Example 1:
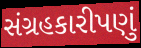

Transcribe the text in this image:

સંગ્રહકારીપણું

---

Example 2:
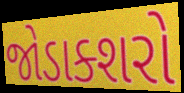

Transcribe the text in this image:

જોડાક્શરો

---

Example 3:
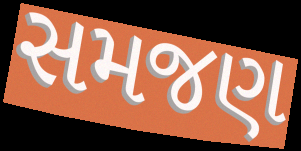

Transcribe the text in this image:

સમજણ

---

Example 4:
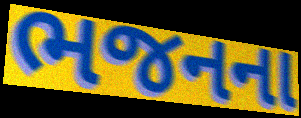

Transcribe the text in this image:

ભજનના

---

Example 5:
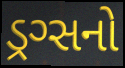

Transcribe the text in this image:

ડ્રગ્સનો